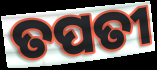
ତପତୀ